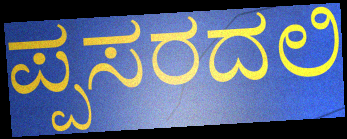
ಪ್ಪಸರದಲಿ